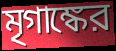
মৃগাঙ্কের